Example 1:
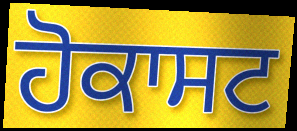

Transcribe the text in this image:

ਹੋਕਾਸਟ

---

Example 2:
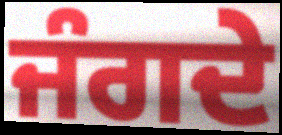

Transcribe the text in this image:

ਜੰਗਦੇ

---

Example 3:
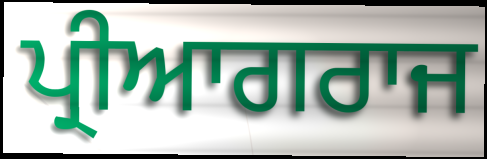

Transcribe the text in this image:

ਪ੍ਰੀਆਗਰਾਜ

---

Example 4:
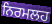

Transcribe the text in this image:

ਨਿਰਮਲਹ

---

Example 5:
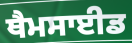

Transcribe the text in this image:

ਥੈਮਸਾਈਡ